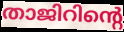
താജിറിന്റെ